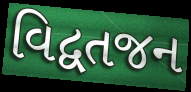
વિદ્વતજન